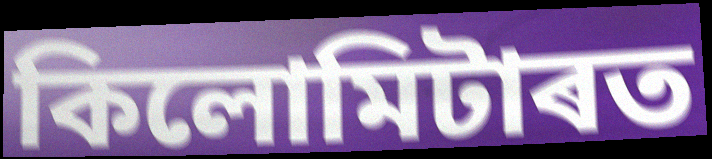
কিলোমিটাৰত